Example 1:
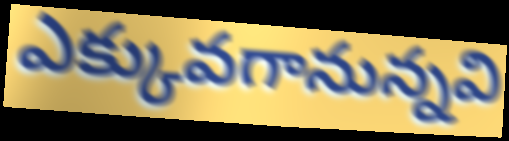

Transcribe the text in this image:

ఎక్కువగానున్నవి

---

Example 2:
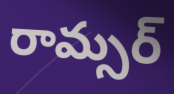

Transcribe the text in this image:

రామ్సర్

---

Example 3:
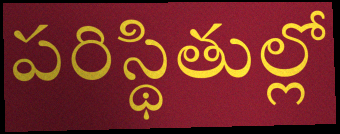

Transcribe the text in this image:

పరిస్థితుల్లో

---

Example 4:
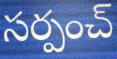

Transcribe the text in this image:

సర్పంచ్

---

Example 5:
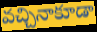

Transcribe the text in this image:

వచ్చినాకూడా